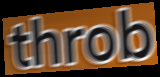
throb